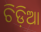
ଚିଡ଼ିଆ